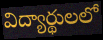
విద్యార్థులలో